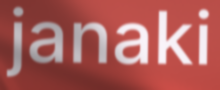
janaki